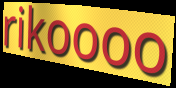
rikoooo